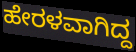
ಹೇರಳವಾಗಿದ್ದ